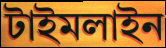
টাইমলাইন